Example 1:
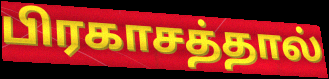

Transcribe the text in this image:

பிரகாசத்தால்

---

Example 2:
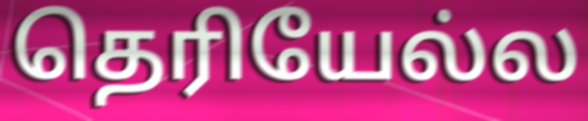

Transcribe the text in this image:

தெரியேல்ல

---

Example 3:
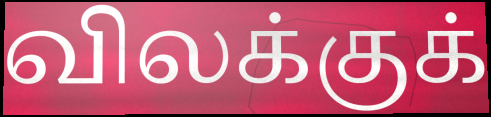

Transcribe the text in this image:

விலக்குக்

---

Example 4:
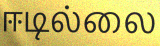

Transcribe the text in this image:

ஈடில்லை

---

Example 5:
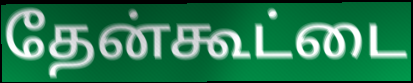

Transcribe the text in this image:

தேன்கூட்டை